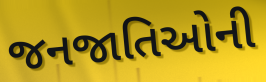
જનજાતિઓની